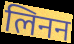
लिनन